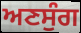
ਅਣਸੁੰਗ